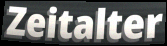
Zeitalter